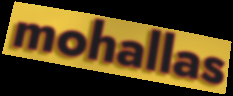
mohallas